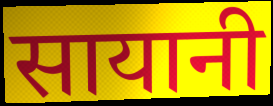
सायानी